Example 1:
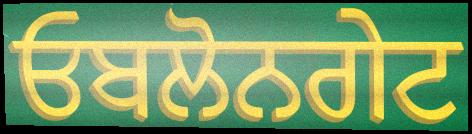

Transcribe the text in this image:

ਓਬਲੋਨਗੇਟ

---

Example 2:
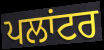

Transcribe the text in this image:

ਪਲਾਂਟਰ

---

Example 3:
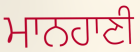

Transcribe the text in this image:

ਮਾਨਹਾਣੀ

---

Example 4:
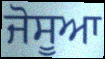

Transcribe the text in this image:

ਜੋਸੂਆ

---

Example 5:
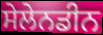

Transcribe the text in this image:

ਸੇਲੇਨਡੀਨ